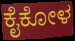
ಕೈಕೋಳ